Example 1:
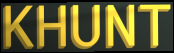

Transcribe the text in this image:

KHUNT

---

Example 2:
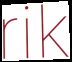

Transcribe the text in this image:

rik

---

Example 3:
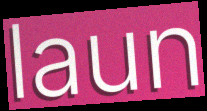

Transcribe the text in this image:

laun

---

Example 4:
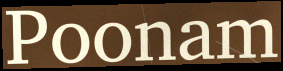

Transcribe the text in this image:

Poonam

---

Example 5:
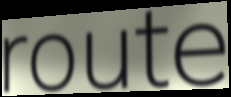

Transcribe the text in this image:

route